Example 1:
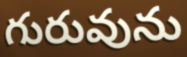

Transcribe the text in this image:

గురువును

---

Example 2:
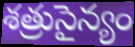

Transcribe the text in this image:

శత్రుసైన్యం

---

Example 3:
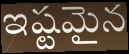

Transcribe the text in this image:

ఇష్టమైన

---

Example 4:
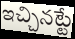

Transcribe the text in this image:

ఇచ్చినట్టే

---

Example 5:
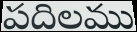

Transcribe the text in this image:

పదిలము